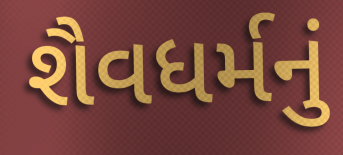
શૈવધર્મનું